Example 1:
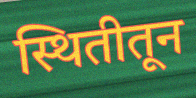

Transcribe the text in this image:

स्थितीतून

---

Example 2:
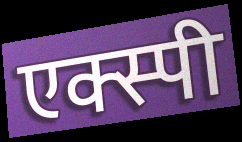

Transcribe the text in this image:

एक्स्पी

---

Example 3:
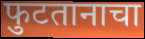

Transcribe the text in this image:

फुटतानाचा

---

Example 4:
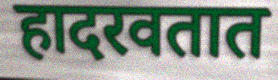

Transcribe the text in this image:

हादरवतात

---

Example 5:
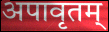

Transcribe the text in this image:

अपावृतम्